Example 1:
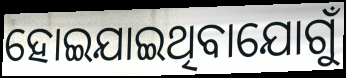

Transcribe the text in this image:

ହୋଇଯାଇଥିବାଯୋଗୁଁ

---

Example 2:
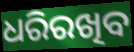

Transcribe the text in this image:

ଧରିରଖିବ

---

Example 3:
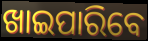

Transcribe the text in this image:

ଖାଇପାରିବେ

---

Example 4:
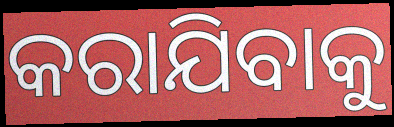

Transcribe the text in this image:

କରାଯିବାକୁ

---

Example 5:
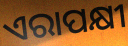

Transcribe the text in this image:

ଏରାପକ୍ଷୀ